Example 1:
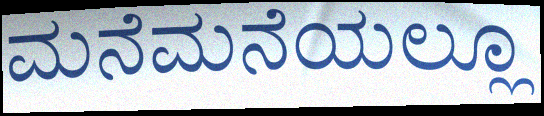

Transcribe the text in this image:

ಮನೆಮನೆಯಲ್ಲೂ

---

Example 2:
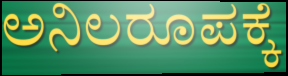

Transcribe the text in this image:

ಅನಿಲರೂಪಕ್ಕೆ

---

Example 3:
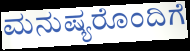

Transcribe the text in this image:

ಮನುಷ್ಯರೊಂದಿಗೆ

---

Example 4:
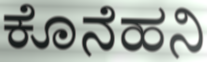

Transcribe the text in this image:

ಕೊನೆಹನಿ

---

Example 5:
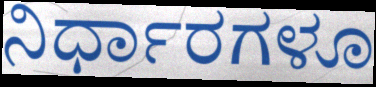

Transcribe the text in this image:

ನಿರ್ಧಾರಗಳೂ